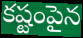
కష్టంపైన